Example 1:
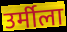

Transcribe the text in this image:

उर्मीला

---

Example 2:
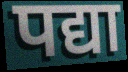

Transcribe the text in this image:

पद्या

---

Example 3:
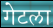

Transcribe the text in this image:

गेटला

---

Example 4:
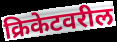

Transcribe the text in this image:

क्रिकेटवरील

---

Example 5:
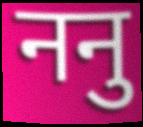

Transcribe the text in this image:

ननु